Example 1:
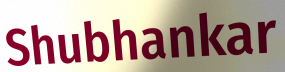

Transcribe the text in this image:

Shubhankar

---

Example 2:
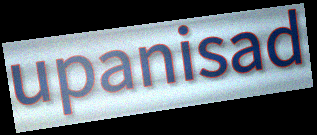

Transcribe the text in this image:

upanisad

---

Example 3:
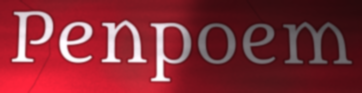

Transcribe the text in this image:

Penpoem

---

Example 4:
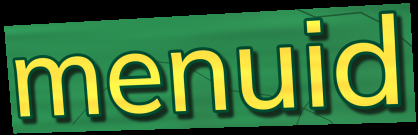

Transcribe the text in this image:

menuid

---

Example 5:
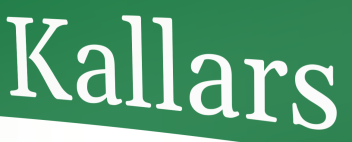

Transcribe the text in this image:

Kallars